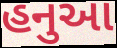
હનુઆ